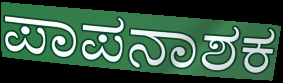
ಪಾಪನಾಶಕ